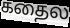
கதைல